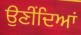
ਉਣੀਂਦਿਆਂ